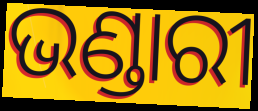
ଭଣ୍ଡାରୀ